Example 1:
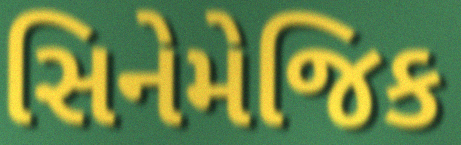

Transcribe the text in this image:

સિનેમેજિક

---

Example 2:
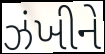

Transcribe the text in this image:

ઝંખીને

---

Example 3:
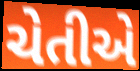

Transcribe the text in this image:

ચેતીએ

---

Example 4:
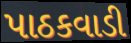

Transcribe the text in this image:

પાઠકવાડી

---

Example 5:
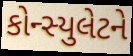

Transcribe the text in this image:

કોન્સ્યુલેટને